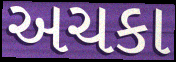
અચકા